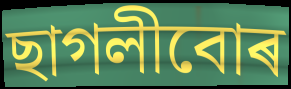
ছাগলীবোৰ